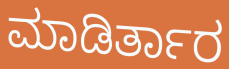
ಮಾಡಿರ್ತಾರ